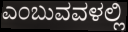
ಎಂಬುವವಳಲ್ಲಿ